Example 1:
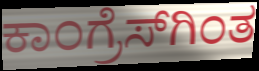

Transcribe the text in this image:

ಕಾಂಗ್ರೆಸ್‌ಗಿಂತ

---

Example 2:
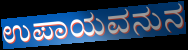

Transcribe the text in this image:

ಉಪಾಯವನುನ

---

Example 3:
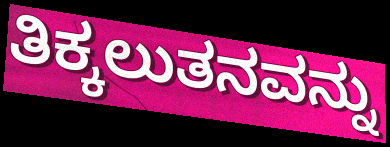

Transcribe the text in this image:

ತಿಕ್ಕಲುತನವನ್ನು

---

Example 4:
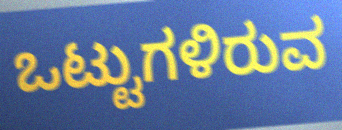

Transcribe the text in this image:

ಒಟ್ಟುಗಳಿರುವ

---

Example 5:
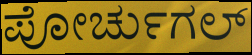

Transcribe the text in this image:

ಪೋರ್ಚುಗಲ್